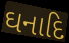
ઘનાદિ